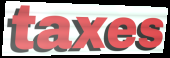
taxes